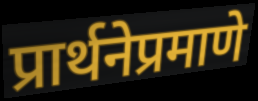
प्रार्थनेप्रमाणे